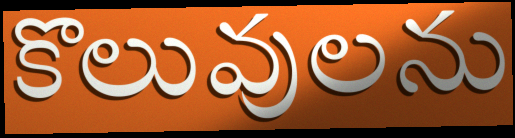
కొలువులను